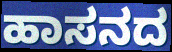
ಹಾಸನದ